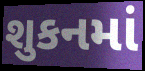
શુકનમાં